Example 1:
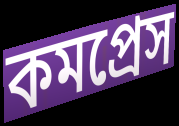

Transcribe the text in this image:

কমপ্রেস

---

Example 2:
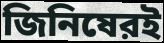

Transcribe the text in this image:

জিনিষেরই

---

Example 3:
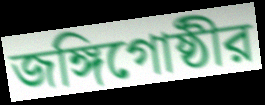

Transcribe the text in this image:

জঙ্গিগোষ্ঠীর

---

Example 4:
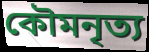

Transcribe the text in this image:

কৌমনৃত্য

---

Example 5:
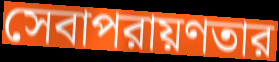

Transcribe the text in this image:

সেবাপরায়ণতার